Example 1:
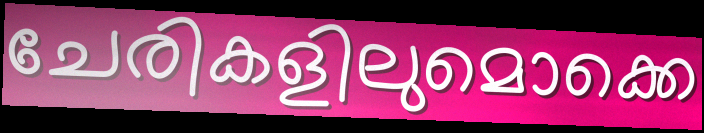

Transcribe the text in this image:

ചേരികളിലുമൊക്കെ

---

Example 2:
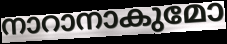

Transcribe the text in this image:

നാറാനാകുമോ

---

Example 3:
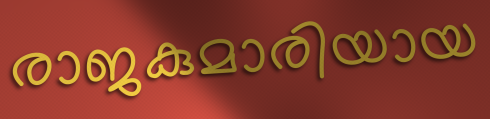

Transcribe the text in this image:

രാജകുമാരിയായ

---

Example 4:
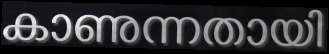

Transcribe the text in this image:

കാണുന്നതായി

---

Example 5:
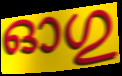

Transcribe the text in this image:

ഓഗു